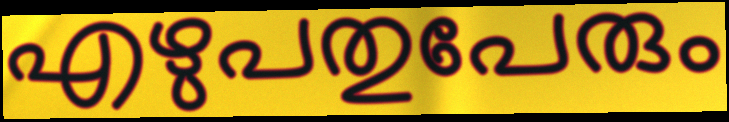
എഴുപതുപേരും